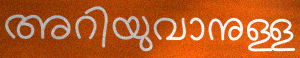
അറിയുവാനുള്ള